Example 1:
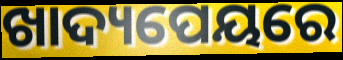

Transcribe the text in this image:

ଖାଦ୍ୟପେୟରେ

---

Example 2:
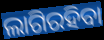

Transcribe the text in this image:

ଲାଗିରହିବା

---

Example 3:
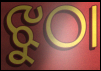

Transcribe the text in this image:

ଝୁଠା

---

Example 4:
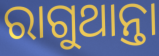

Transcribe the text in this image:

ରାଗୁଥାନ୍ତା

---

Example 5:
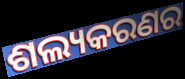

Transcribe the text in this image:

ଶଲ୍ୟକରଣର